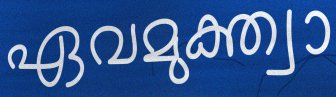
ഏവമുക്ത്വാ